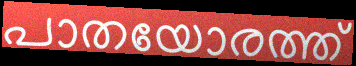
പാതയോരത്ത്